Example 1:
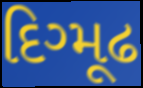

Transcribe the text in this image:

દિગ્મૂઢ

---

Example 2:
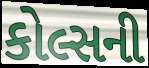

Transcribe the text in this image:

કોલ્સની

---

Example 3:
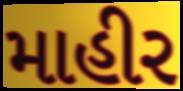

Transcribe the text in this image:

માહીર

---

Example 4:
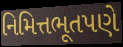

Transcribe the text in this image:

નિમિત્તભૂતપણે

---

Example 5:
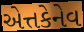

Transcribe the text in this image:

એત્તકેનેવ